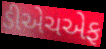
ડીએચએફ